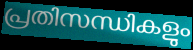
പ്രതിസന്ധികളും